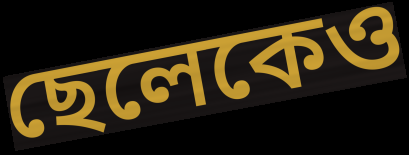
ছেলেকেও